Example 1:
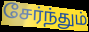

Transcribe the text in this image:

சேர்ந்தும்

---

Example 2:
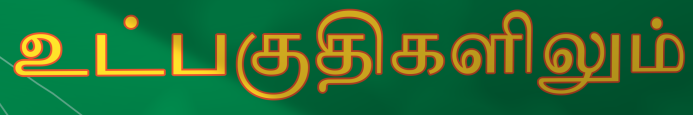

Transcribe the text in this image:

உட்பகுதிகளிலும்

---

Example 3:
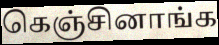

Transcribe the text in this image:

கெஞ்சினாங்க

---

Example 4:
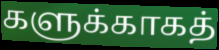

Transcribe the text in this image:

களுக்காகத்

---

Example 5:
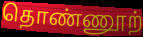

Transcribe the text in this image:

தொண்ணூற்